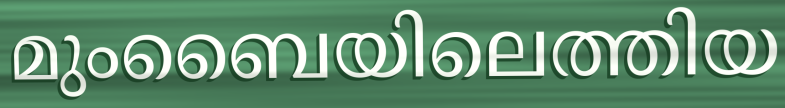
മുംബൈയിലെത്തിയ